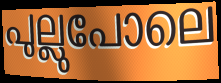
പുല്ലുപോലെ